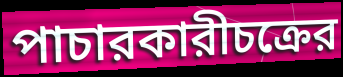
পাচারকারীচক্রের